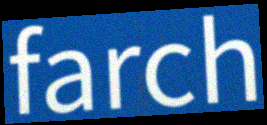
farch